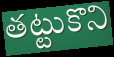
తట్టుకొని